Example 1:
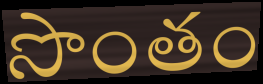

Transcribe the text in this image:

సొంతం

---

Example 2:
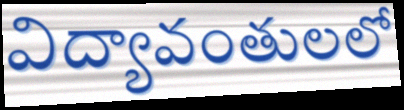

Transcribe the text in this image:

విద్యావంతులలో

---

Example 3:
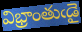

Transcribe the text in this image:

విభ్రాంతుఁడై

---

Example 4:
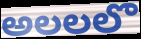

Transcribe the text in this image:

అలలలొ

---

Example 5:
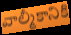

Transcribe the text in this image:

వాల్మీకానికి